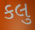
કલુ